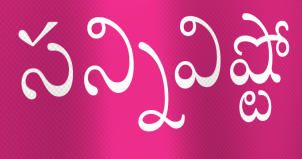
సన్నివిష్టో